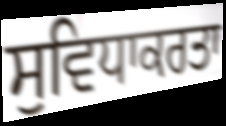
ਸੁਵਿਧਾਕਰਤਾ